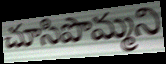
చూసిపొమ్మని